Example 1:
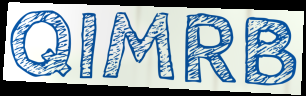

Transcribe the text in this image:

QIMRB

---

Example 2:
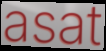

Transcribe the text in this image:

asat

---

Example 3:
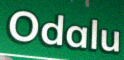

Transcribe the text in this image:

Odalu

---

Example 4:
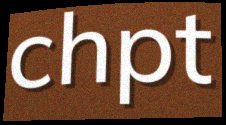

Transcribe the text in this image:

chpt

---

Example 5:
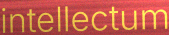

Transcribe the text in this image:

intellectum